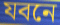
যবনে